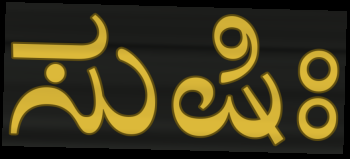
ಸುಷಿಃ